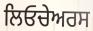
ਲਿਓਚੇਅਰਸ